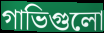
গাভিগুলো